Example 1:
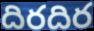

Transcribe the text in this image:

దిరదిర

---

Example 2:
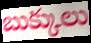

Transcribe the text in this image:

బుక్కులు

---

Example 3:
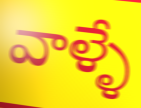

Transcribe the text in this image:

వాళ్ళే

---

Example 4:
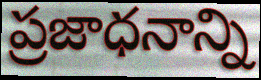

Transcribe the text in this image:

ప్రజాధనాన్ని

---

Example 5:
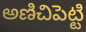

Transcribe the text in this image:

అణిచిపెట్టి